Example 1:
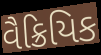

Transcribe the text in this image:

વૈક્રિયિક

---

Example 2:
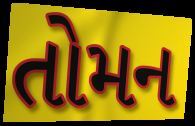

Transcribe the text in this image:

તોમન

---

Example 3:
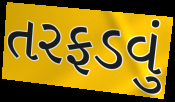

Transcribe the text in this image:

તરફડવું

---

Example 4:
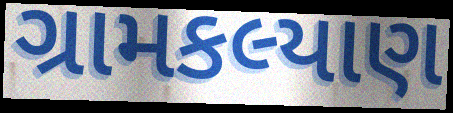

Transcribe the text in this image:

ગ્રામકલ્યાણ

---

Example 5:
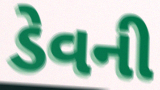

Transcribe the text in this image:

ડેવની